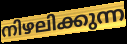
നിഴലിക്കുന്ന